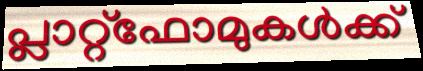
പ്ലാറ്റ്ഫോമുകൾക്ക്